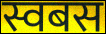
स्वबस